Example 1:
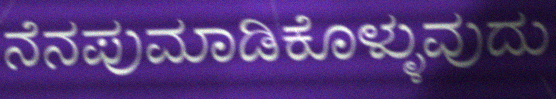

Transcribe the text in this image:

ನೆನಪುಮಾಡಿಕೊಳ್ಳುವುದು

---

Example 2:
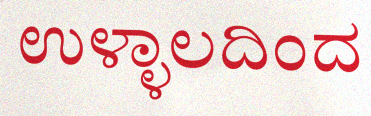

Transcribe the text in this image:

ಉಳ್ಳಾಲದಿಂದ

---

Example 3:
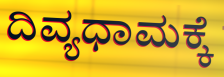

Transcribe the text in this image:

ದಿವ್ಯಧಾಮಕ್ಕೆ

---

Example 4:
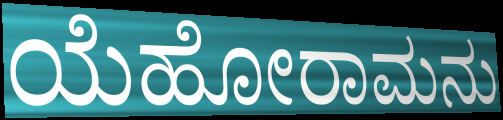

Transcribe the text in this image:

ಯೆಹೋರಾಮನು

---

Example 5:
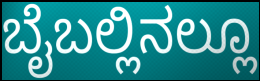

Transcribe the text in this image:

ಬೈಬಲ್ಲಿನಲ್ಲೂ